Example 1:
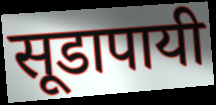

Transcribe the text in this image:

सूडापायी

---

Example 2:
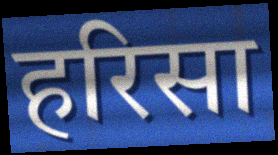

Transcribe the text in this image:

हरिसा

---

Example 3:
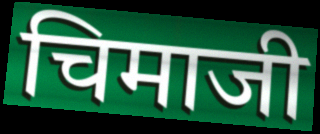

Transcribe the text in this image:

चिमाजी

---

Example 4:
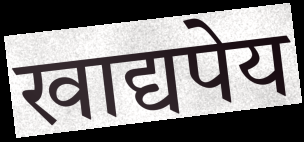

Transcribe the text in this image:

खाद्यपेय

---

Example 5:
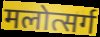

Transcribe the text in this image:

मलोत्सर्ग